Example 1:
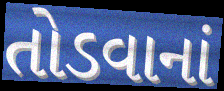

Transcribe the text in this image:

તોડવાનાં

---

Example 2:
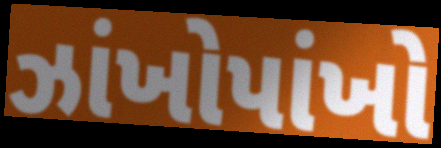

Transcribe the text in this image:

ઝાંખોપાંખો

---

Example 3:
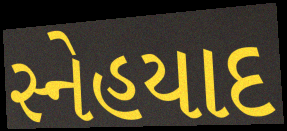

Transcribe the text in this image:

સ્નેહયાદ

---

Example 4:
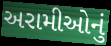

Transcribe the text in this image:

અરામીઓનું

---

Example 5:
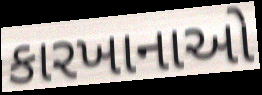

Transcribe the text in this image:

કારખાનાઓ